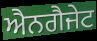
ਐਨਗੈਜੇਟ